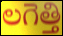
లగెత్తి